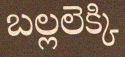
బల్లలెక్కి